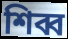
শিব্ব